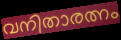
വനിതാരത്നം